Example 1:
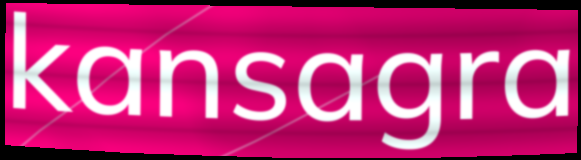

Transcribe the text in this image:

kansagra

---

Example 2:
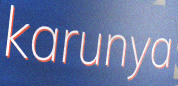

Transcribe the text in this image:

karunya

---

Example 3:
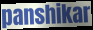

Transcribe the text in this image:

panshikar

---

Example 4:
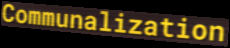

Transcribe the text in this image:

Communalization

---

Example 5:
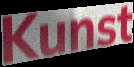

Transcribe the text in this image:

Kunst